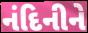
નંદિનીને